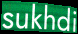
sukhdi